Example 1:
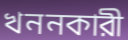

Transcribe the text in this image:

খননকারী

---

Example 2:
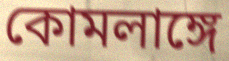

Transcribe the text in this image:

কোমলাঙ্গে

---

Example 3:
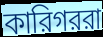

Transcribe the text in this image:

কারিগররা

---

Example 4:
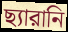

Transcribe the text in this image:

ছ্যারানি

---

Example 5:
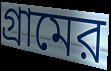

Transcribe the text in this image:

গ্রামের